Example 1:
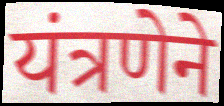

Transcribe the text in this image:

यंत्रणेने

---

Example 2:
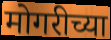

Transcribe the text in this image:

मोगरीच्या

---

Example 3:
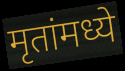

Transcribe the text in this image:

मृतांमध्ये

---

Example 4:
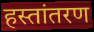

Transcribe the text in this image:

हस्तांतरण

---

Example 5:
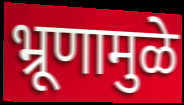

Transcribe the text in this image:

भ्रूणामुळे